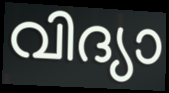
വിദ്യാ